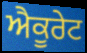
ਐਕੂਰੇਟ